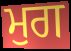
ਮੁਗ